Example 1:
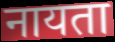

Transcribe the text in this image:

नायता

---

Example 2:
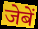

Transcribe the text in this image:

जेबें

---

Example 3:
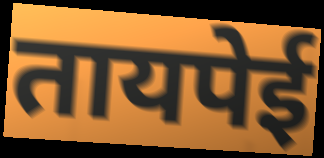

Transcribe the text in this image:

तायपेई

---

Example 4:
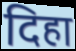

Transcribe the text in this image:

दिहा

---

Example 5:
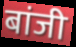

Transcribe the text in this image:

बांजी